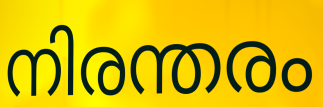
നിരന്തരം